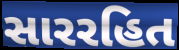
સારરહિત